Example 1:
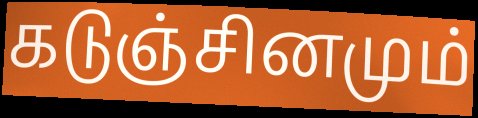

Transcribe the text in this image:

கடுஞ்சினமும்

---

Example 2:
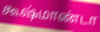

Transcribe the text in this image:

கூஷ்மாண்டா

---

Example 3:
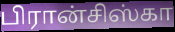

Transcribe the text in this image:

பிரான்சிஸ்கா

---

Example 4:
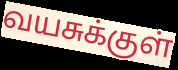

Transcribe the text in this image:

வயசுக்குள்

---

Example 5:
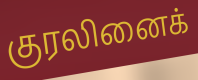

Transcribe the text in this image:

குரலினைக்